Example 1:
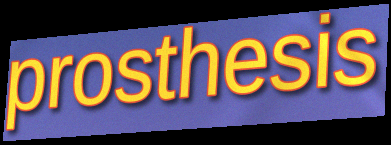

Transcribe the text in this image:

prosthesis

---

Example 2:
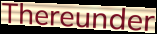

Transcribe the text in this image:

Thereunder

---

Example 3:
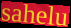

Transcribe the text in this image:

sahelu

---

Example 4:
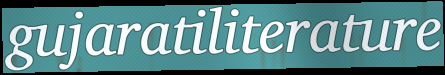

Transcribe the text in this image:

gujaratiliterature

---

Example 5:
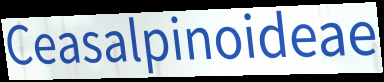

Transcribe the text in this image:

Ceasalpinoideae